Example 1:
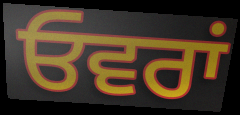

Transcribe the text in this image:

ਓਵਰਾਂ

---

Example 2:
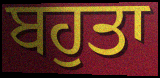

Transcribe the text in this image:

ਬਹੁਤਾ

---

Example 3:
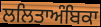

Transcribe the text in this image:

ਲਲਿਤਾਅੰਬਿਕਾ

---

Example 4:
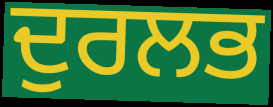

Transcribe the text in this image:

ਦੁਰਲਭ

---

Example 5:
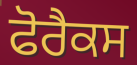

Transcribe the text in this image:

ਫੋਰੈਕਸ